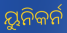
ୟୁନିକର୍ନ